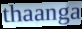
thaanga